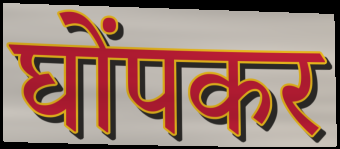
घोंपकर